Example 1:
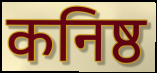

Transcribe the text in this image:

कनिष्ठ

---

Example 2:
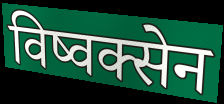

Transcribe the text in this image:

विष्वक्सेन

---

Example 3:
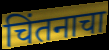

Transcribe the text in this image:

चिंतनाचा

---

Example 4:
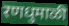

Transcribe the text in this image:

रणधुमाळी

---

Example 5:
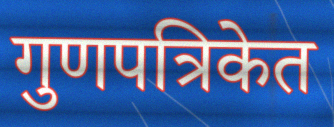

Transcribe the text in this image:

गुणपत्रिकेत